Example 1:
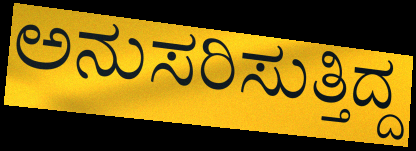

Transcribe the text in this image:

ಅನುಸರಿಸುತ್ತಿದ್ದ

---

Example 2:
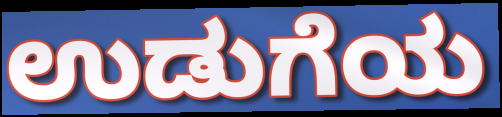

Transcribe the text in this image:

ಉಡುಗೆಯ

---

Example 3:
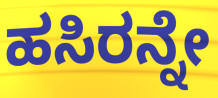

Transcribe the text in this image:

ಹಸಿರನ್ನೇ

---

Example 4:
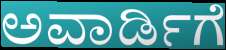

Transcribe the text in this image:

ಅವಾರ್ಡಿಗೆ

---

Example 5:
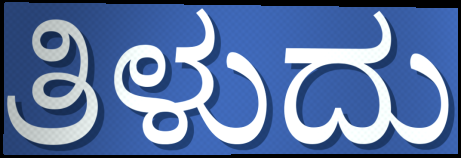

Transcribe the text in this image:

ತಿಳುದು